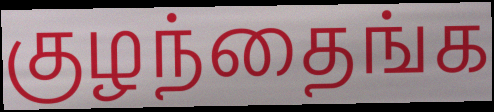
குழந்தைங்க